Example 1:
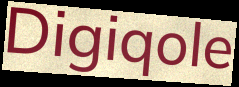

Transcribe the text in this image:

Digiqole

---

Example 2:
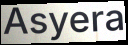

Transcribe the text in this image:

Asyera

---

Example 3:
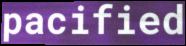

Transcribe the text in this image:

pacified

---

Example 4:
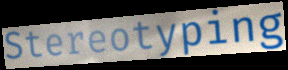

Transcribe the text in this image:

Stereotyping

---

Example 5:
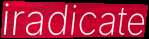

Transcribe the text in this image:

iradicate